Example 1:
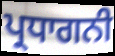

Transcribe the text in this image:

ਪ੍ਰਧਾਗਨੀ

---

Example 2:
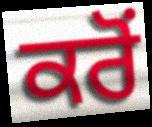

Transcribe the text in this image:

ਕਰੋਂ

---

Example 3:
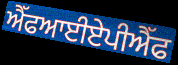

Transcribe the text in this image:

ਐੱਫਆਈਏਪੀਐੱਫ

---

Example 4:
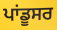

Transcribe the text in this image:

ਪਾਂਡੂਸਰ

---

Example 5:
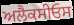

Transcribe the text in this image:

ਅਲੈਕਸੀਓਸ